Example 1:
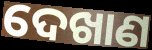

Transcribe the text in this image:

ଦେଖାଣ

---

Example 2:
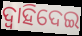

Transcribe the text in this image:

ଦ୍ବାହିଦେଇ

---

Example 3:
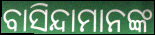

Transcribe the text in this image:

ବାସିନ୍ଦାମାନଙ୍କ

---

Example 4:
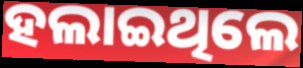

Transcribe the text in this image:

ହଲାଇଥିଲେ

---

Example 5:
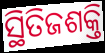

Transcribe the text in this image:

ସ୍ଥିତିଜଶକ୍ତି